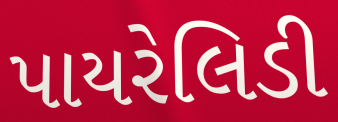
પાયરેલિડી